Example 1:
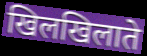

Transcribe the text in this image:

खिलखिलाते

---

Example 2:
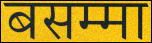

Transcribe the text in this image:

बसम्मा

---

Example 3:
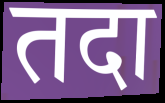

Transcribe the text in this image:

तदा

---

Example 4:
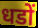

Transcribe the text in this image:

धडों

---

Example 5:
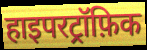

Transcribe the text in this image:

हाइपरट्रॉफ़िक